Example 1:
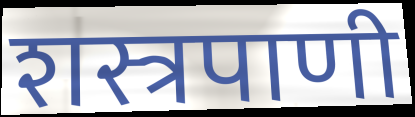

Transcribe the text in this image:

शस्त्रपाणी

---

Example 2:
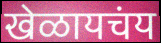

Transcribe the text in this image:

खेळायचंय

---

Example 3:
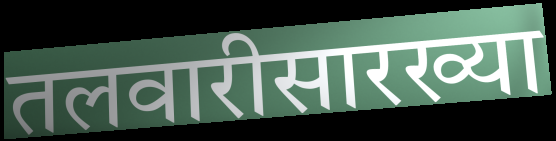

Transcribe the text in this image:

तलवारीसारख्या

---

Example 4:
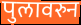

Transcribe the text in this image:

पुलावरुन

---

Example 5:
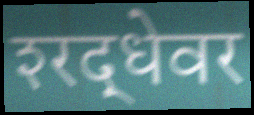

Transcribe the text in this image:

श्रद्धेवर